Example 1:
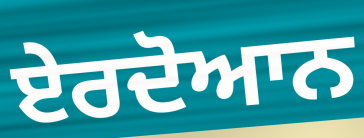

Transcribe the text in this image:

ਏਰਦੋਆਨ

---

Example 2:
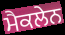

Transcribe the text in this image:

ਮੈਕਲੇਨ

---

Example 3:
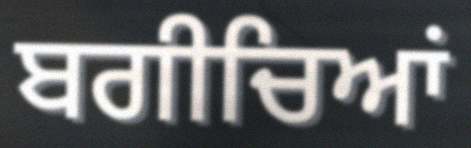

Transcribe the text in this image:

ਬਗੀਚਿਆਂ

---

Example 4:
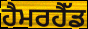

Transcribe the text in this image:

ਹੈਮਰਹੈੱਡ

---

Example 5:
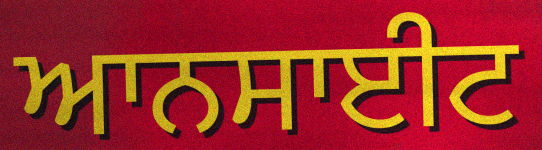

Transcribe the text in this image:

ਆਨਸਾਈਟ